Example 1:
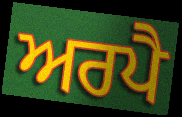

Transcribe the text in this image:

ਅਰਪੈ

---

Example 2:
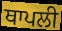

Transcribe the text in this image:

ਥਾਪਲੀ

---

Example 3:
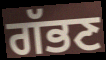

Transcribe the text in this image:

ਗੱਭਣ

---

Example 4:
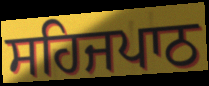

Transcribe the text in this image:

ਸਹਿਜਪਾਠ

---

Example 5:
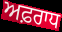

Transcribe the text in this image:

ਅਫ਼ਰਾਧ